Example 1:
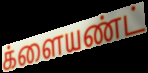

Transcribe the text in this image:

க்ளையண்ட்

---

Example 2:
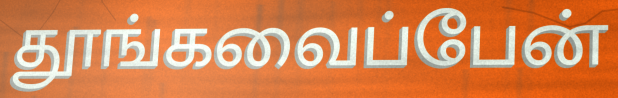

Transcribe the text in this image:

தூங்கவைப்பேன்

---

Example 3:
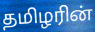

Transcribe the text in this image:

தமிழரின்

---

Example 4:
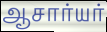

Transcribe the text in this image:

ஆசார்யர்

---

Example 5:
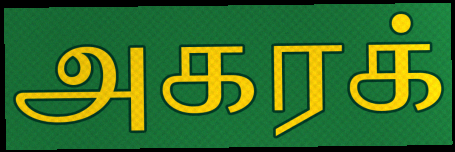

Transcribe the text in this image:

அகரக்